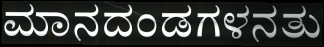
ಮಾನದಂಡಗಳನತು